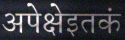
अपेक्षेइतकं